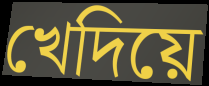
খেদিয়ে